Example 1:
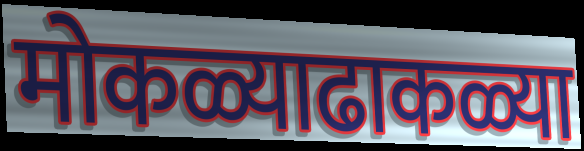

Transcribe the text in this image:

मोकळ्याढाकळ्या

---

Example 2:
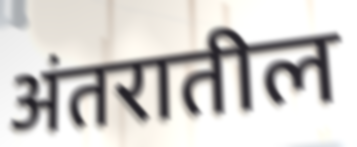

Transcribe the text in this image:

अंतरातील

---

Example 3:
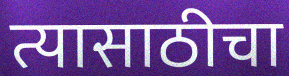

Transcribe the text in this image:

त्यासाठीचा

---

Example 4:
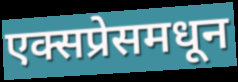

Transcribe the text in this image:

एक्सप्रेसमधून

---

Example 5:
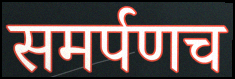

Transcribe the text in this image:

समर्पणच